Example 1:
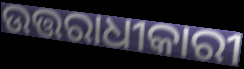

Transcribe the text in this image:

ଉତ୍ତରାଧୀକାରୀ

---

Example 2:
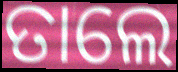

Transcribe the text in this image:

ତାଲେ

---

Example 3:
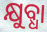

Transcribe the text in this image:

କ୍ଷୁବ୍ଧା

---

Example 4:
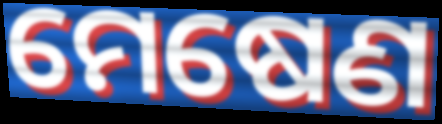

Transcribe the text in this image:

ମେଷେଣ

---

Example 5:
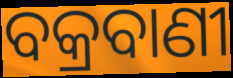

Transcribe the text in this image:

ବକ୍ରବାଣୀ